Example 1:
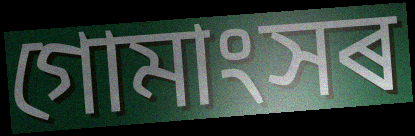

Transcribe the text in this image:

গোমাংসৰ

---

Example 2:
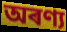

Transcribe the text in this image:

অৰণ্য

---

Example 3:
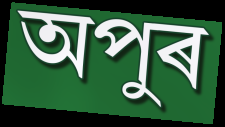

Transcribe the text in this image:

অপুৰ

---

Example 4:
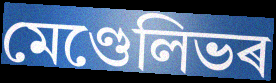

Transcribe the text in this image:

মেণ্ডেলিভৰ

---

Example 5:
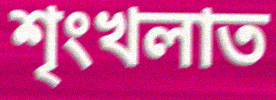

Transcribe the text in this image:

শৃংখলাত